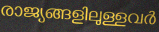
രാജ്യങ്ങളിലുള്ളവർ